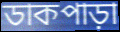
ডাকপাড়া